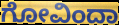
ಗೋವಿಂದಾ